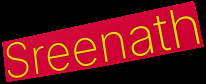
Sreenath